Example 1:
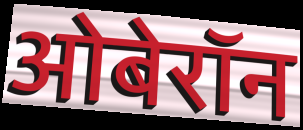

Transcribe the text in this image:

ओबेरॉन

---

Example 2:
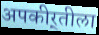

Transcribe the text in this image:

अपकीर्तीला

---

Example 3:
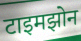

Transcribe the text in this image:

टाइमझोन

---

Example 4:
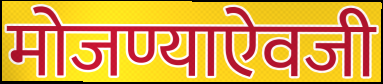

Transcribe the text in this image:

मोजण्याऐवजी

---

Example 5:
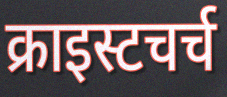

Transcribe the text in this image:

क्राइस्टचर्च